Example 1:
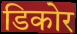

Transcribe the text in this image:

डिकोर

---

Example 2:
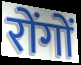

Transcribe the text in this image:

रोंगों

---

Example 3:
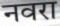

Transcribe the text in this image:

नवरा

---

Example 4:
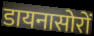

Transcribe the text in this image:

डायनासोरों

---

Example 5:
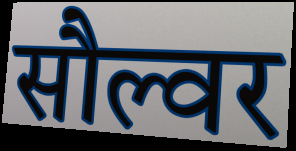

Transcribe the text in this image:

सौल्वर